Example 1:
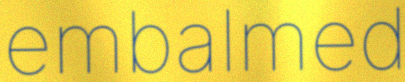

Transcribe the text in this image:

embalmed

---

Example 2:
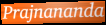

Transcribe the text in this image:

Prajnananda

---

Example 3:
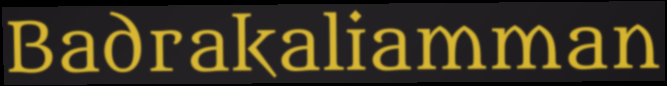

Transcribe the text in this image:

Badrakaliamman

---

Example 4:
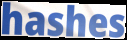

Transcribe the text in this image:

hashes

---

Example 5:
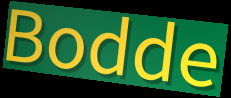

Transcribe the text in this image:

Bodde